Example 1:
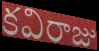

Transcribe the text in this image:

కవిరాజు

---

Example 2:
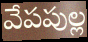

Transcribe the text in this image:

వేపపుల్ల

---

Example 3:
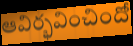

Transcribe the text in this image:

ఆవిర్భవించిందో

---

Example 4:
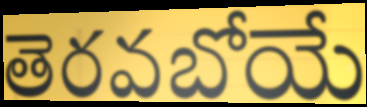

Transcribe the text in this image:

తెరవబోయే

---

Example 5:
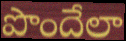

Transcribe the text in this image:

పొందేలా